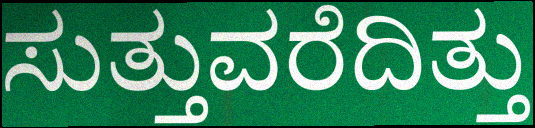
ಸುತ್ತುವರೆದಿತ್ತು